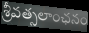
శ్రీవత్సలాంఛనం